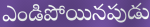
ఎండిపోయినపుడు